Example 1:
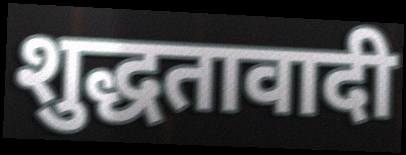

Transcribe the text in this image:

शुद्धतावादी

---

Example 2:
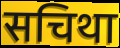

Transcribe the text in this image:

सचिथा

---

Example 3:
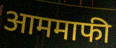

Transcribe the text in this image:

आममाफी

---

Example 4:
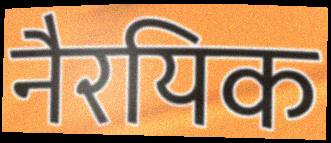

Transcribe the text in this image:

नैरयिक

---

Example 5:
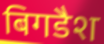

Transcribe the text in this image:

बिगडैश